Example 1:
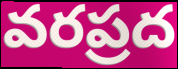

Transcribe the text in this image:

వరప్రద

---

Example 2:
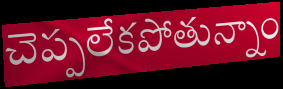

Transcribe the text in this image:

చెప్పలేకపోతున్నాం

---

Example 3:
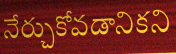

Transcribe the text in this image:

నేర్చుకోవడానికని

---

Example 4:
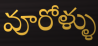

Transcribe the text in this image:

వూరోళ్ళు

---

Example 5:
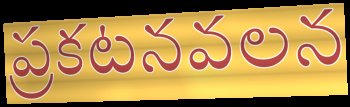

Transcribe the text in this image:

ప్రకటనవలన